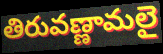
తిరువణ్ణామలై